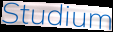
Studium